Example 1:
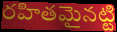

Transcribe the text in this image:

రహితమైనట్టి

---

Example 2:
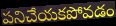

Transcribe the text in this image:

పనిచేయకపోవడం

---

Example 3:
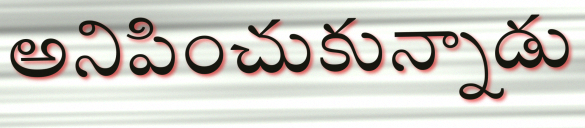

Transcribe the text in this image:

అనిపించుకున్నాడు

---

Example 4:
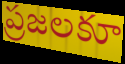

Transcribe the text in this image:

ప్రజలకూ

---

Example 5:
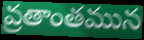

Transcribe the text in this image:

వ్రతాంతమున